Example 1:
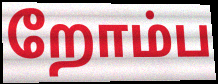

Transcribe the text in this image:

றோம்ப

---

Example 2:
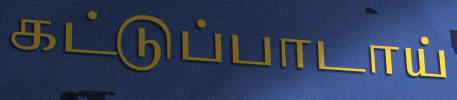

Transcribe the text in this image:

கட்டுப்பாடாய்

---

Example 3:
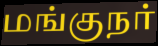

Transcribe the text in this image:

மங்குநர்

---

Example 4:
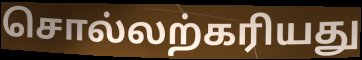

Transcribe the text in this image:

சொல்லற்கரியது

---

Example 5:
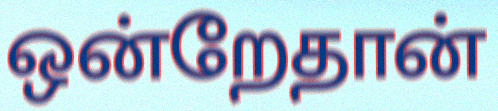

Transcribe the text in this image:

ஒன்றேதான்